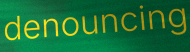
denouncing